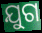
ଯୁଗ